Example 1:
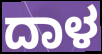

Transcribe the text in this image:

ದಾಳ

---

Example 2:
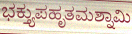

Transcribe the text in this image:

ಭಕ್ತ್ಯುಪಹೃತಮಶ್ನಾಮಿ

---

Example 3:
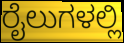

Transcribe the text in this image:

ರೈಲುಗಳಲ್ಲಿ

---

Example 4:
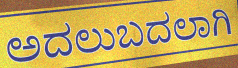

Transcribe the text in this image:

ಅದಲುಬದಲಾಗಿ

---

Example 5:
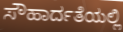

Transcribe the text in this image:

ಸೌಹಾರ್ದತೆಯಲ್ಲಿ